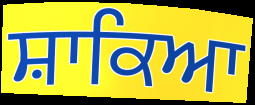
ਸ਼ਾਕਿਆ